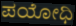
ಪಯೋಧಿ